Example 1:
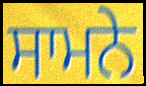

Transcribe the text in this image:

ਸਾਮਨੇ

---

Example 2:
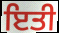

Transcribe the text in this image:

ਇਤੀ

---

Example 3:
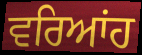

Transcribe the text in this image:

ਵਰਿਆਂਹ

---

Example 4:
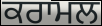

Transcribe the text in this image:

ਕਰਾਮਲ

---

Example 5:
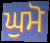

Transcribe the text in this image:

ਘੁਮੋ